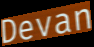
Devan